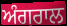
ਅੰਗਰਾਲ